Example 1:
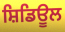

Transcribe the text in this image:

ਸ਼ਿਡਿਊਲ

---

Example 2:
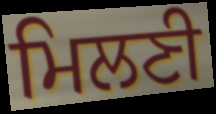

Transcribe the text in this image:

ਮਿਲਣੀ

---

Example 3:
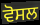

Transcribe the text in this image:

ਵੋਸਲ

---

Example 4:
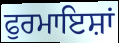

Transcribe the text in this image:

ਫੁਰਮਾਇਸ਼ਾਂ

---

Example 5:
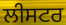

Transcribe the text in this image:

ਲੀਸਟਰ